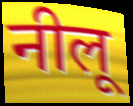
नीलू